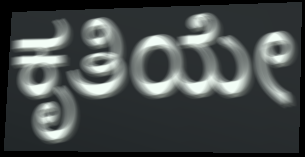
ಕೃತಿಯೇ